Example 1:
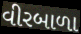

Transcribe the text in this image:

વીરબાળા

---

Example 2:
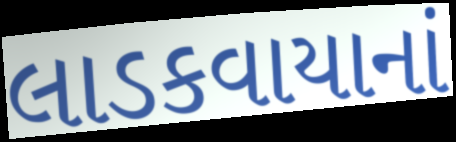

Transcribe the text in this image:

લાડકવાયાનાં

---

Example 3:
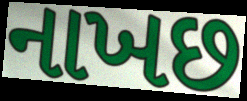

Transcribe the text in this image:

નાખછ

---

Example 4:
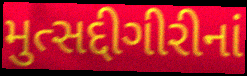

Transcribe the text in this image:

મુત્સદ્દીગીરીનાં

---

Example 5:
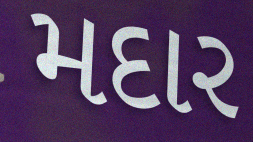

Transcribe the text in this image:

મદાર